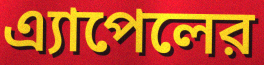
এ্যাপেলের